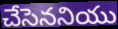
చేసెననియు